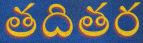
తదితర